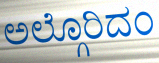
ಅಲ್ಗೊರಿದಂ